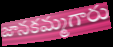
జానకమ్మగారు